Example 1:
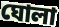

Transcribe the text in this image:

ঘোলা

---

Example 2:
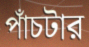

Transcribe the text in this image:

পাঁচটার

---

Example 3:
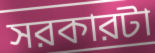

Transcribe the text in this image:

সরকারটা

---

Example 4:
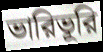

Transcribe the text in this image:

ভারিভূরি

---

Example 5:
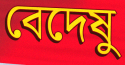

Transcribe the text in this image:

বেদেষু